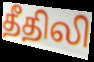
தீதிலி